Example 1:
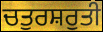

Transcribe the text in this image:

ਚਤੁਰਸ਼ਰੁਤੀ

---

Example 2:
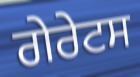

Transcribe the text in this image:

ਗੇਰੇਟਸ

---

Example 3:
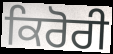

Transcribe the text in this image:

ਕਿਰੋਰੀ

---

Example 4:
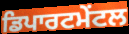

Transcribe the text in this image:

ਡਿਪਾਰਟਮੇਂਟਲ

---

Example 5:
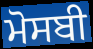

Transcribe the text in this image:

ਮੋਸਬੀ